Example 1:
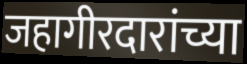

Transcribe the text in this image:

जहागीरदारांच्या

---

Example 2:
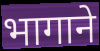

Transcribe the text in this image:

भागाने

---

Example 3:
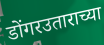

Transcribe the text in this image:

डोंगरउताराच्या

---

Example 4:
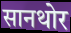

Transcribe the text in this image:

सानथोर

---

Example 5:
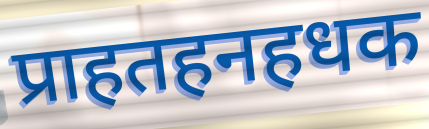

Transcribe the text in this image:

प्राहतहनहधक